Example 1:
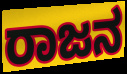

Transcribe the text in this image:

ರಾಜನ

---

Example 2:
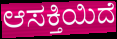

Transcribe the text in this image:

ಆಸಕ್ತಿಯಿದೆ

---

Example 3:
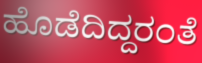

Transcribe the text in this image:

ಹೊಡೆದಿದ್ದರಂತೆ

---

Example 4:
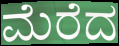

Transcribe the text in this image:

ಮೆರೆದ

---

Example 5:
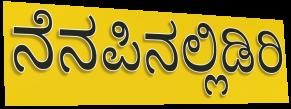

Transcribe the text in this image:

ನೆನಪಿನಲ್ಲಿಡಿರಿ